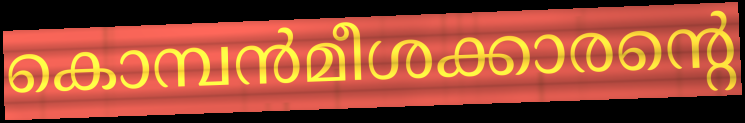
കൊമ്പൻമീശക്കാരന്റെ